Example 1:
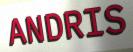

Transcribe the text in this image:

ANDRIS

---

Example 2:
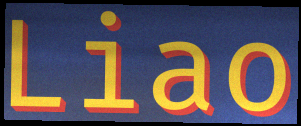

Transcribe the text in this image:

Liao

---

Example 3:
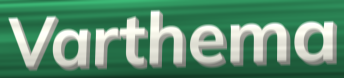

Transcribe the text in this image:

Varthema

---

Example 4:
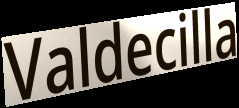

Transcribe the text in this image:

Valdecilla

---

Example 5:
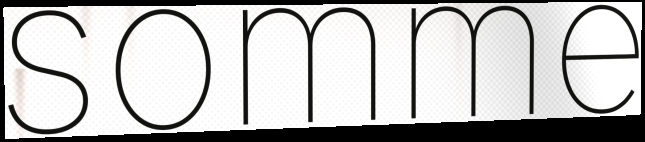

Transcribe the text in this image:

somme